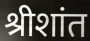
श्रीशांत